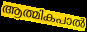
ആത്മികപാൽ